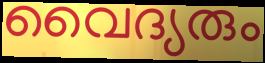
വൈദ്യരും